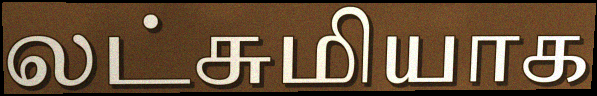
லட்சுமியாக